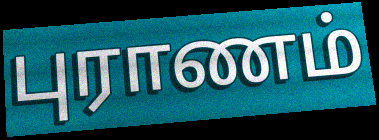
புராணம்